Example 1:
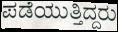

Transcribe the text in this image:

ಪಡೆಯುತ್ತಿದ್ದರು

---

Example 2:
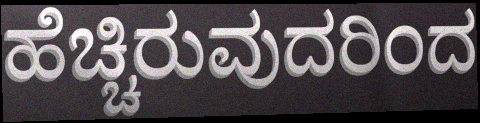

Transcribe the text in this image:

ಹೆಚ್ಚಿರುವುದರಿಂದ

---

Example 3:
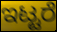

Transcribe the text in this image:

ಇಟ್ಟರೆ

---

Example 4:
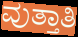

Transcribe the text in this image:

ವುತ್ತಾತಿ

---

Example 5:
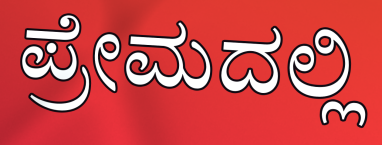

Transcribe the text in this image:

ಪ್ರೇಮದಲ್ಲಿ